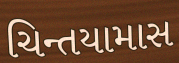
ચિન્તયામાસ